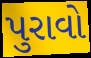
પુરાવો